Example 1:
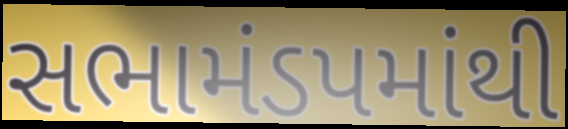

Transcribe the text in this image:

સભામંડપમાંથી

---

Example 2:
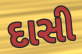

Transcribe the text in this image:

દાસી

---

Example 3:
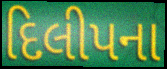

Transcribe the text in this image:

દિલીપના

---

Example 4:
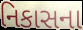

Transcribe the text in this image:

નિકાસના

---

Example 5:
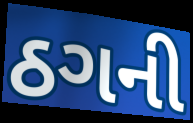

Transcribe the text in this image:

ઠગની